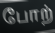
போற்